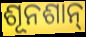
ଶୂନଶାନ୍